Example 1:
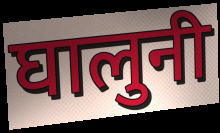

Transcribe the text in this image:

घालुनी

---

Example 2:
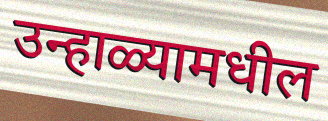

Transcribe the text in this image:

उन्हाळ्यामधील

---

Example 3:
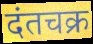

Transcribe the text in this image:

दंतचक्र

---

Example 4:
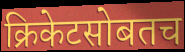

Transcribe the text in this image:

क्रिकेटसोबतच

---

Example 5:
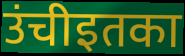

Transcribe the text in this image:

उंचीइतका